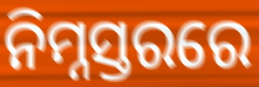
ନିମ୍ନସ୍ତରରେ